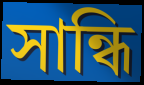
সান্ধি